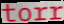
torr